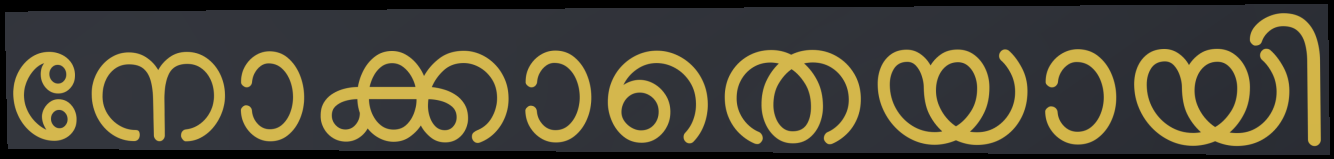
നോക്കാതെയായി